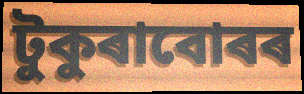
টুকুৰাবোৰৰ